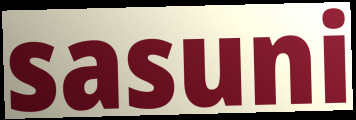
sasuni